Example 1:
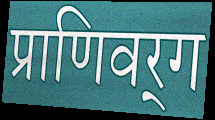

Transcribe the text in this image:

प्राणिवर्ग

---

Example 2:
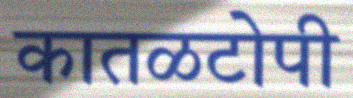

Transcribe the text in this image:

कातळटोपी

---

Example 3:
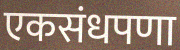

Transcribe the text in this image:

एकसंधपणा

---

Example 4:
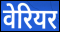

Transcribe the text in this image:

वेरियर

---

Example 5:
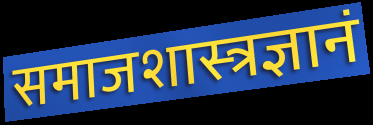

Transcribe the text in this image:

समाजशास्त्रज्ञानं